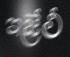
ఇజ్రేలీ